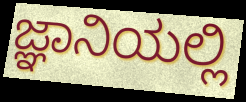
ಜ್ಞಾನಿಯಲ್ಲಿ